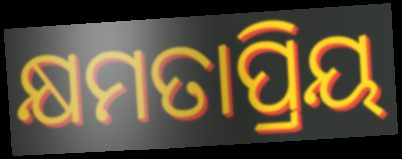
କ୍ଷମତାପ୍ରିୟ